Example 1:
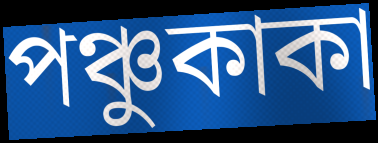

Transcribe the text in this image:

পঞ্চুকাকা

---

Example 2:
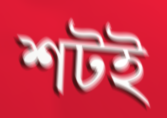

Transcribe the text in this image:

শটই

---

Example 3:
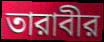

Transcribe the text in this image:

তারাবীর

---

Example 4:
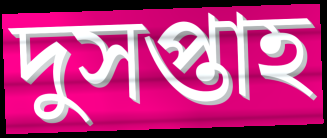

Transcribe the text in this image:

দুসপ্তাহ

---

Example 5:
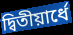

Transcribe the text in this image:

দ্বিতীয়ার্ধে